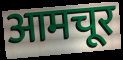
आमचूर